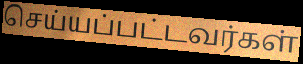
செய்யப்பட்டவர்கள்